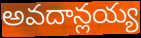
అవదాన్లయ్య